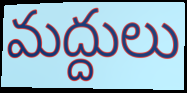
మద్దులు